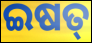
ଇଷତ୍